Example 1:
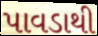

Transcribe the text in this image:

પાવડાથી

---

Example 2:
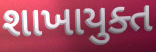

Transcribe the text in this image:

શાખાયુક્ત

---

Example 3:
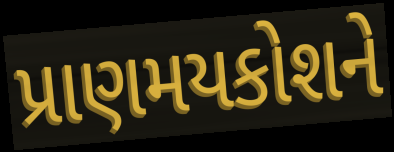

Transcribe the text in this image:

પ્રાણમયકોશને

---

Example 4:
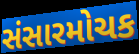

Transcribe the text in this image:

સંસારમોચક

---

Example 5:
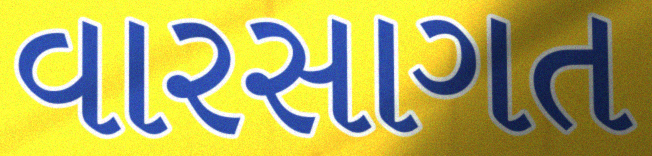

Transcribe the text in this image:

વારસાગત